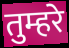
तुम्हरे